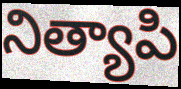
నిత్యాపి